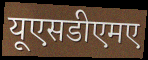
यूएसडीएमए